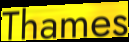
Thames